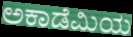
ಅಕಾಡೆಮಿಯ